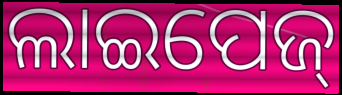
ଲାଇପେଜ୍